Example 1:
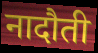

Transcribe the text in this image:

नादौती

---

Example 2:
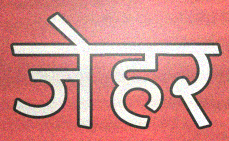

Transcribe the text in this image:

जेहर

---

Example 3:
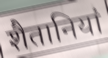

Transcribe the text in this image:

शैतानियां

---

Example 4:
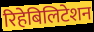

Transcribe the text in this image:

रिहेबिलिटेशन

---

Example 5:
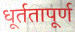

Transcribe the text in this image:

धूर्ततापूर्ण